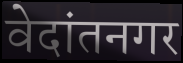
वेदांतनगर